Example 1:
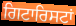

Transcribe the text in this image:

ਗਿਟਾਰਿਸਟਾਂ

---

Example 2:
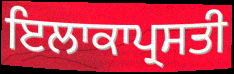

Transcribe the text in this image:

ਇਲਾਕਾਪ੍ਰਸਤੀ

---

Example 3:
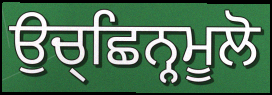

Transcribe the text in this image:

ਉਚ੍ਛਿਨ੍ਨਮੂਲੋ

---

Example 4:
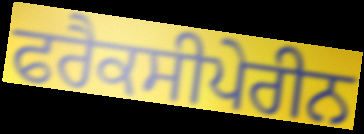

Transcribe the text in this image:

ਫਰੈਕਸੀਪੇਰੀਨ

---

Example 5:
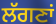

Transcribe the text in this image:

ਲੱਗਣਾਂ